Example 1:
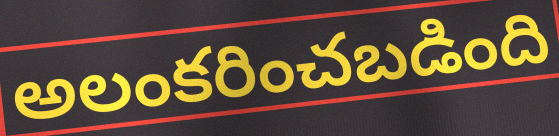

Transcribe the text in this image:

అలంకరించబడింది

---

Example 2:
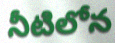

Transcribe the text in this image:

నీటిలోన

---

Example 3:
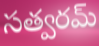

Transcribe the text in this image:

సత్వరమ్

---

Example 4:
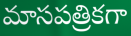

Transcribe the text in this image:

మాసపత్రికగా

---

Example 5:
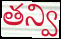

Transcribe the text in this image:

తన్వి